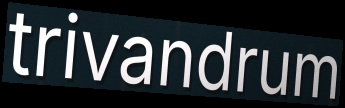
trivandrum